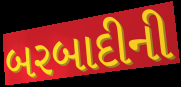
બરબાદીની